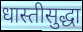
धास्तीसुद्धा